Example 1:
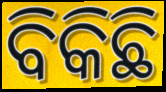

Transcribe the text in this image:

ବିକିଛି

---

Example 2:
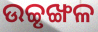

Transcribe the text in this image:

ଉଚ୍ଚୃଙ୍ଖଳ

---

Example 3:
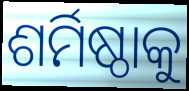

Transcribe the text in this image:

ଶର୍ମିଷ୍ଠାକୁ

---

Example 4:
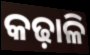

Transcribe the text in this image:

କଢ଼ାଳି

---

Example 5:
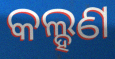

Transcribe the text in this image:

କଲ୍ହଣ